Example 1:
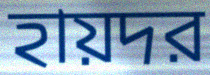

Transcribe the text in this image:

হায়দর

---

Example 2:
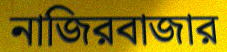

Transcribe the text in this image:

নাজিরবাজার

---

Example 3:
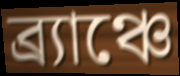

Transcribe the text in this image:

ব্র্যাঞ্চে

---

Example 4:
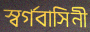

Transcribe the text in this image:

স্বর্গবাসিনী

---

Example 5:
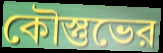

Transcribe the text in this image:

কৌস্তুভের